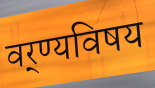
वर्ण्यविषय